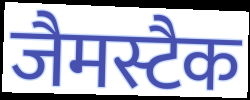
जैमस्टैक